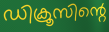
ഡിക്രൂസിന്റെ